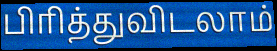
பிரித்துவிடலாம்